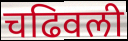
चढिवली